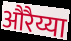
औरैय्या